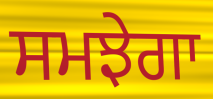
ਸਮਝੇਗਾ